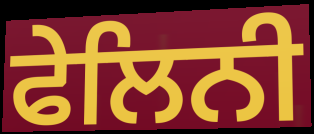
ਫੇਲਿਨੀ